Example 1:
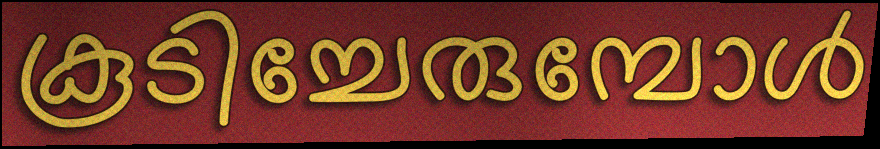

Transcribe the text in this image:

കൂടിച്ചേരുമ്പോൾ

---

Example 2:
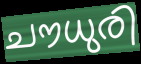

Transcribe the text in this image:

ചൗധുരി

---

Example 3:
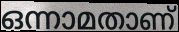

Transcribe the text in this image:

ഒന്നാമതാണ്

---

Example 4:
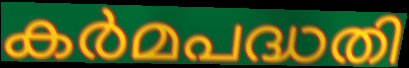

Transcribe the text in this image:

കർമപദ്ധതി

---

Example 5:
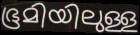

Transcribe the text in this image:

ഭൂമിയിലുള്ള